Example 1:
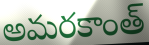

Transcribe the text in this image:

అమరకాంత్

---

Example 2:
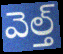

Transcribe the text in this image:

వెల్త్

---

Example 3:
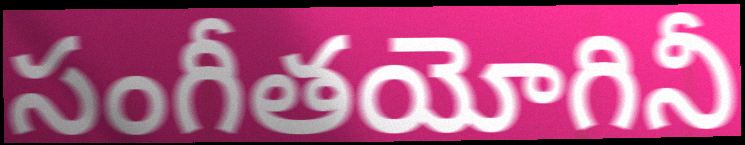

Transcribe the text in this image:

సంగీతయోగినీ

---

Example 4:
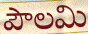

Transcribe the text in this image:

పౌలమి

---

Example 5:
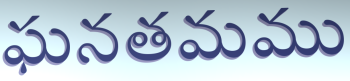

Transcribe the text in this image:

ఘనతమము